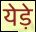
येड़े